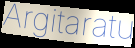
Argitaratu